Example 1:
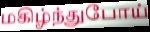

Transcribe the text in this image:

மகிழ்ந்துபோய்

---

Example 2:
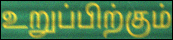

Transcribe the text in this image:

உறுப்பிற்கும்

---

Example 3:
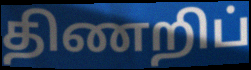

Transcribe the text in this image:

திணறிப்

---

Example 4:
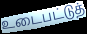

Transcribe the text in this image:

உடைபட்டுத்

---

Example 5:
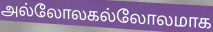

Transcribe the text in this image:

அல்லோலகல்லோலமாக